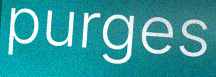
purges